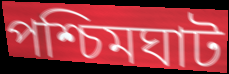
পশ্চিমঘাট